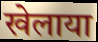
खेलाया